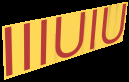
IIIUIU